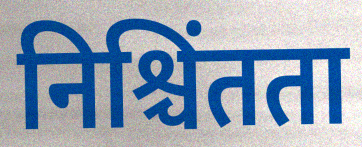
निश्चिंतता